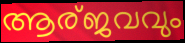
ആര്ജവവും